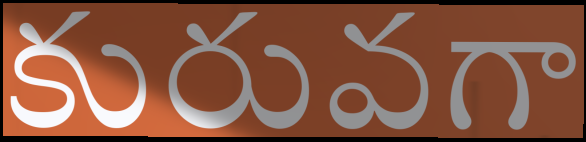
కురువగా